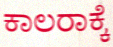
ಕಾಲರಾಕ್ಕೆ